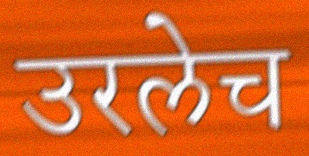
उरलेच